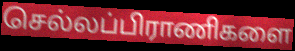
செல்லப்பிராணிகளை